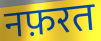
नफ़रत